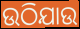
ଉଠିଯାଉ